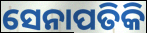
ସେନାପତିକି